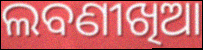
ଲବଣୀଖିଆ